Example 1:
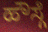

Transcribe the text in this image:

ಹೌಸ್ಗೆ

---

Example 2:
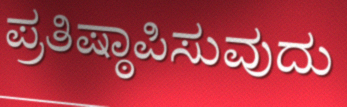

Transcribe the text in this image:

ಪ್ರತಿಷ್ಠಾಪಿಸುವುದು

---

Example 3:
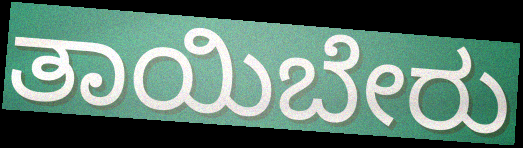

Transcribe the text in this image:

ತಾಯಿಬೇರು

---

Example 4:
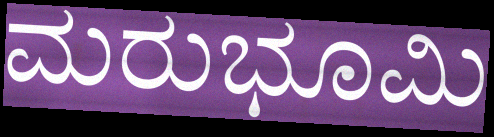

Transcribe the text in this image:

ಮರುಭೂಮಿ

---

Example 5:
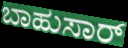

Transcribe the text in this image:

ಬಾಹುಸಾರ್